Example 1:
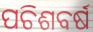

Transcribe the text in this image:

ପଚିଶବର୍ଷ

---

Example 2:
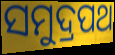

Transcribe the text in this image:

ସମୁଦ୍ରପଥ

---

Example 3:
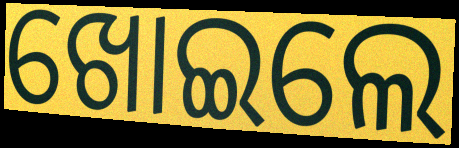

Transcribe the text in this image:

ଖୋଇଲେ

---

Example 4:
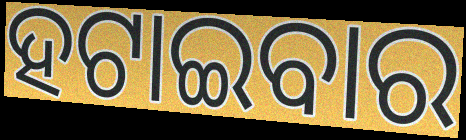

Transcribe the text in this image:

ହଟାଇବାର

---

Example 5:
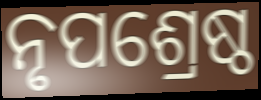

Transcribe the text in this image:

ନୃପଶ୍ରେଷ୍ଠ